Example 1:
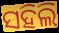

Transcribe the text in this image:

ସହିଲି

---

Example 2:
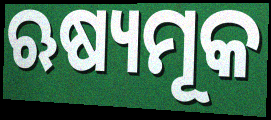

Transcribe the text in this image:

ଋଷ୍ୟମୂକ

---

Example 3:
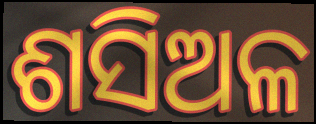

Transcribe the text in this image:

ଶସିଅଳ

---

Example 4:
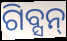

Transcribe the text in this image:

ଗିବ୍ସନ୍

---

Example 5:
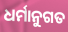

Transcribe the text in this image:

ଧର୍ମାନୁଗତ